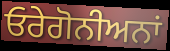
ਓਰੇਗੋਨੀਅਨਾਂ